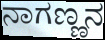
ನಾಗಣ್ಣನ